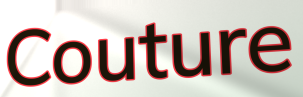
Couture